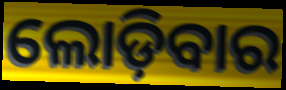
ଲୋଡ଼ିବାର